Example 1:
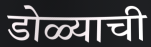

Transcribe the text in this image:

डोळ्याची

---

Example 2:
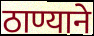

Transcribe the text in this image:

ठाण्याने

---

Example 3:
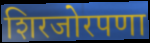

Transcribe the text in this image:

शिरजोरपणा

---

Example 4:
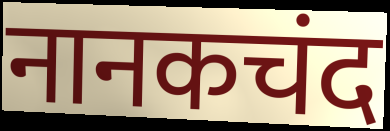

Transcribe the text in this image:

नानकचंद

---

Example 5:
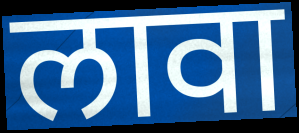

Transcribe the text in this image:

लावा